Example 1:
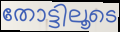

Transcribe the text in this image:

തോട്ടിലൂടെ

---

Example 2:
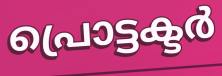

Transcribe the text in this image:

പ്രൊട്ടക്ടർ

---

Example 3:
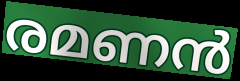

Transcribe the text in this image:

രമണൻ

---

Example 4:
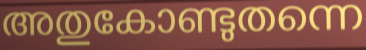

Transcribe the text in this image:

അതുകോണ്ടുതന്നെ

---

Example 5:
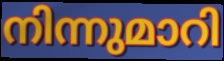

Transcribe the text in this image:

നിന്നുമാറി